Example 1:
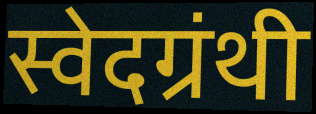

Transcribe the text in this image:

स्वेदग्रंथी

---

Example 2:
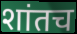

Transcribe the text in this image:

शांतच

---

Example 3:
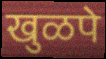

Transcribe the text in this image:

खुळपे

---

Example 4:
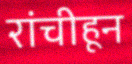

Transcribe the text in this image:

रांचीहून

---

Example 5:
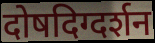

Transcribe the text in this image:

दोषदिग्दर्शन